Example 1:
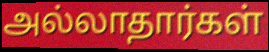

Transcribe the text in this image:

அல்லாதார்கள்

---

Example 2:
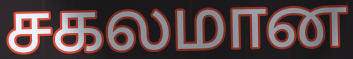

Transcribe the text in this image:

சகலமான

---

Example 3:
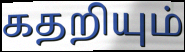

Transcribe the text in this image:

கதறியும்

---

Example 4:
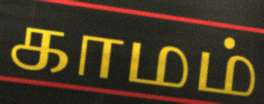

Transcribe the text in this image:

காமம்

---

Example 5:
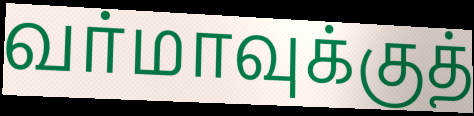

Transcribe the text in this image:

வர்மாவுக்குத்